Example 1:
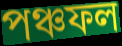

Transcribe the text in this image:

পঞ্চফল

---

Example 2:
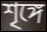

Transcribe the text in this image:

শৃঙ্গে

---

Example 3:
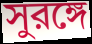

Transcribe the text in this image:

সুরঙ্গে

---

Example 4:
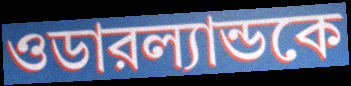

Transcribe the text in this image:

ওডারল্যান্ডকে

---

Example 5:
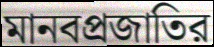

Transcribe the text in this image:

মানবপ্রজাতির